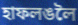
হাফলঙলৈ